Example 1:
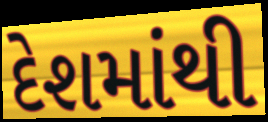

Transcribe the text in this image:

દેશમાંથી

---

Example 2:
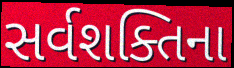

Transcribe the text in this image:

સર્વશક્તિના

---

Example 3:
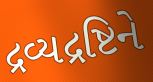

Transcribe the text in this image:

દ્રવ્યદ્રષ્ટિને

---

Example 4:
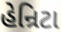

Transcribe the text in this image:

હેન્રિટા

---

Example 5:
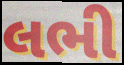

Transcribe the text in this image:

લભી